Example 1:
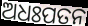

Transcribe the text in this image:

ଅଧଃପତନ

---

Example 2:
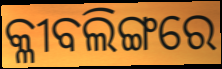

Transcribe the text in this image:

କ୍ଳୀବଲିଙ୍ଗରେ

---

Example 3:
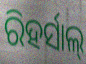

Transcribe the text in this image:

ରିହର୍ସାଲ୍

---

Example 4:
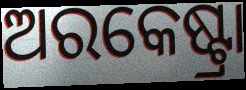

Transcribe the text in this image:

ଅରକେଷ୍ଟ୍ରା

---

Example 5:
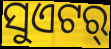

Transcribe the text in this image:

ସୁଏଟର୍